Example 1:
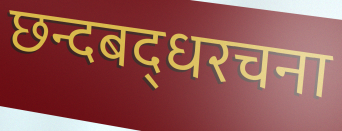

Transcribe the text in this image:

छन्दबद्धरचना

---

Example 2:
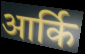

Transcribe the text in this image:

आर्कि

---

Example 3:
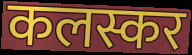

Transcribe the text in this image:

कलस्कर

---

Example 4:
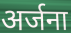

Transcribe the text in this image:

अर्जना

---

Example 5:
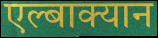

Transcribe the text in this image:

एल्बाक्यान